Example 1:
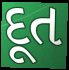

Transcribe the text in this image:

દૂત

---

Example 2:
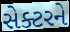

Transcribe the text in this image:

સેક્ટરને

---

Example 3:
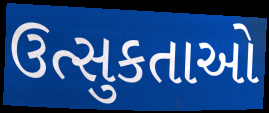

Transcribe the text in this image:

ઉત્સુકતાઓ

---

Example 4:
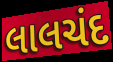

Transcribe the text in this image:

લાલચંદ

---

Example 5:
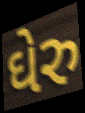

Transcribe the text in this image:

ઘેરુ